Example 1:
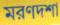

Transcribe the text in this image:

মরণদশা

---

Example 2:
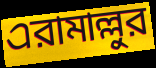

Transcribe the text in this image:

এরামাল্লুর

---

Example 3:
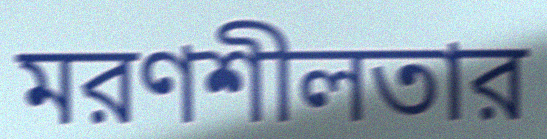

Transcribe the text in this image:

মরণশীলতার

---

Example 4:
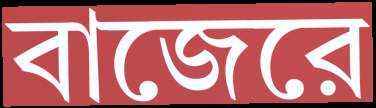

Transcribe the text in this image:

বাজেরে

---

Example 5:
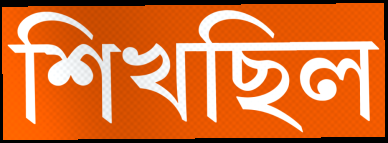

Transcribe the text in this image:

শিখছিল